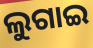
ଲୁଗାଇ